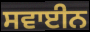
ਸਵਾਈਨ